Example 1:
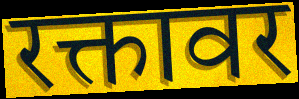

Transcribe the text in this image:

रक्तावर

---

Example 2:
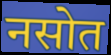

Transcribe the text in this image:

नसोत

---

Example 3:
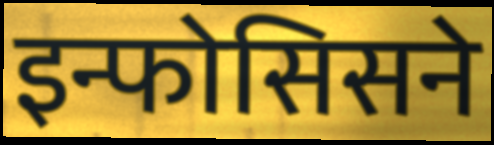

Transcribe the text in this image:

इन्फोसिसने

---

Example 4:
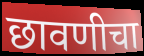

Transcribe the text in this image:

छावणीचा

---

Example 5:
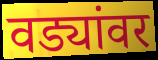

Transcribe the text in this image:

वड्यांवर